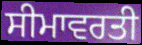
ਸੀਮਾਵਰਤੀ